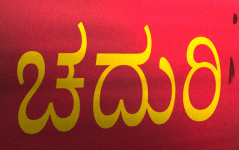
ಚದುರಿ